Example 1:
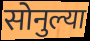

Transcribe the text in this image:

सोनुल्या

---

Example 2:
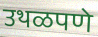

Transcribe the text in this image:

उथळपणे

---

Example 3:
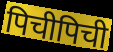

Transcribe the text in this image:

पिचीपिची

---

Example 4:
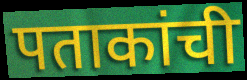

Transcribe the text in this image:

पताकांची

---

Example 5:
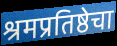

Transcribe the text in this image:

श्रमप्रतिष्ठेचा